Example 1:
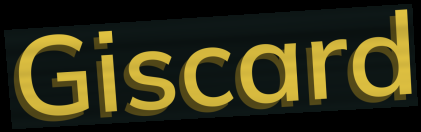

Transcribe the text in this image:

Giscard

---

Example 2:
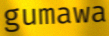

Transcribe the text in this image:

gumawa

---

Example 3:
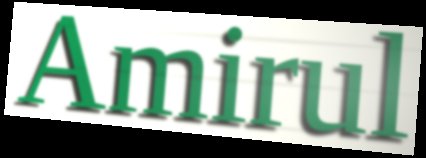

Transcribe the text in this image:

Amirul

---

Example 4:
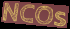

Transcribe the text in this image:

NCOs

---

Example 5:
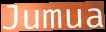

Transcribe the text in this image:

Jumua